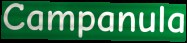
Campanula